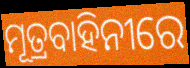
ମୂତ୍ରବାହିନୀରେ